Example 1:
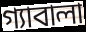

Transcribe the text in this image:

গ্যাবালা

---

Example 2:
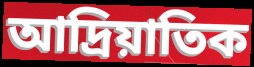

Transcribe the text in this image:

আদ্রিয়াতিক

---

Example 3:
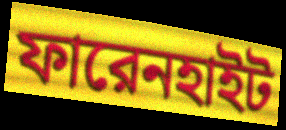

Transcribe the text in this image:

ফারেনহাইট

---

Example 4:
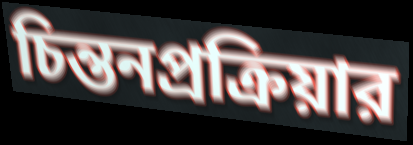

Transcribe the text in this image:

চিন্তনপ্রক্রিয়ার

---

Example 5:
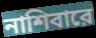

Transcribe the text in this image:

নাশিবারে